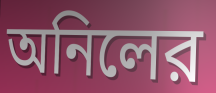
অনিলের